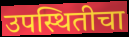
उपस्थितीचा